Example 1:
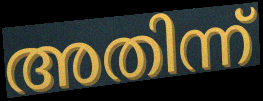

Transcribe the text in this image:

അതിന്ന്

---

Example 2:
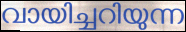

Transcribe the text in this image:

വായിച്ചറിയുന്ന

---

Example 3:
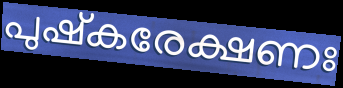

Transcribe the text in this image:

പുഷ്കരേക്ഷണഃ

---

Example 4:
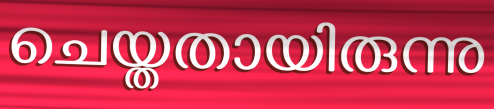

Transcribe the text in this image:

ചെയ്തതായിരുന്നു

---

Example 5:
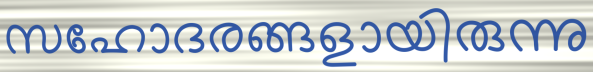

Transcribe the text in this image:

സഹോദരങ്ങളായിരുന്നു